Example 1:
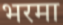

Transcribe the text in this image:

भरमा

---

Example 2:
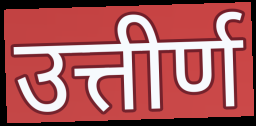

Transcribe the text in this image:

उत्तीर्ण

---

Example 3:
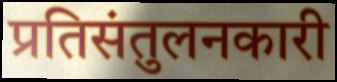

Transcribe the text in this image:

प्रतिसंतुलनकारी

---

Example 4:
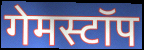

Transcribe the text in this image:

गेमस्टॉप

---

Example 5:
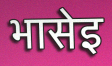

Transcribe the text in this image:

भासेइ